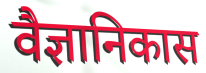
वैज्ञानिकास